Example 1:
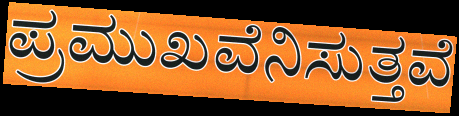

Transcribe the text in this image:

ಪ್ರಮುಖವೆನಿಸುತ್ತವೆ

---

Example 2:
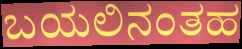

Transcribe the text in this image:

ಬಯಲಿನಂತಹ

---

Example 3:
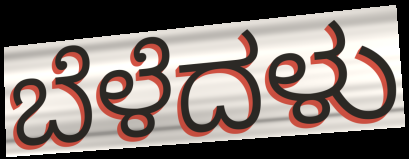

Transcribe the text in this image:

ಬೆಳೆದಳು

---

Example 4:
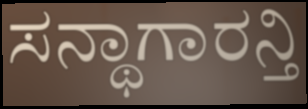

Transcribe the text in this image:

ಸನ್ಥಾಗಾರನ್ತಿ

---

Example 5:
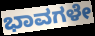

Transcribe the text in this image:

ಭಾವಗಳೇ